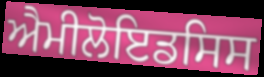
ਐਮੀਲੋਇਡਸਿਸ